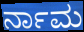
ರ್ನಾಮ